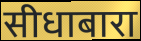
सीधाबारा